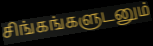
சிங்கங்களுடனும்